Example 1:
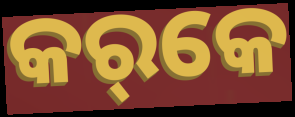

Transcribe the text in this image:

କର୍‌କେ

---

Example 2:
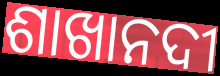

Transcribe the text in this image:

ଶାଖାନଦୀ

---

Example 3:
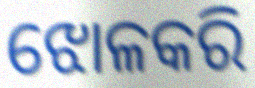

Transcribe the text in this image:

ଝୋଳକରି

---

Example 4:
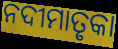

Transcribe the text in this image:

ନଦୀମାତୃକା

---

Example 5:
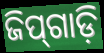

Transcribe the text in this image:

ଜିପ୍‌ଗାଡ଼ି